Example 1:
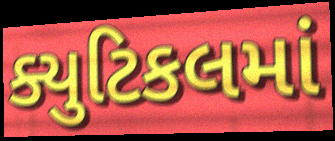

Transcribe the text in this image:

ક્યુટિકલમાં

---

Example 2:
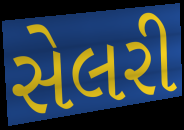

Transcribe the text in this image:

સેલરી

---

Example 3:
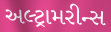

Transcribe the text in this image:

અલ્ટ્રામરીન્સ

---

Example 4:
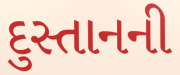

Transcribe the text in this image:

દુસ્તાનની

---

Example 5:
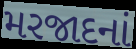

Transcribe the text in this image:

મરજાદનાં